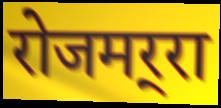
रोजमर्रा